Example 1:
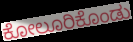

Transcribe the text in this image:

ಕೋಲೂರಿಕೊಂಡು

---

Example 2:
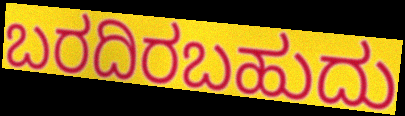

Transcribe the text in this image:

ಬರದಿರಬಹುದು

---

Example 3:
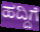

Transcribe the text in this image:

ಹದ್ದಿಗೆ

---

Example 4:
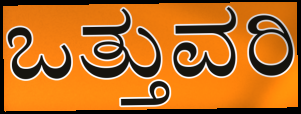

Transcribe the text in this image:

ಒತ್ತುವರಿ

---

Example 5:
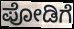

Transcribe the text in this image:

ಪೋಡಿಗೆ